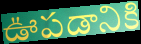
ఊపడానికి